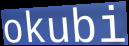
okubi